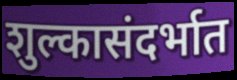
शुल्कासंदर्भात